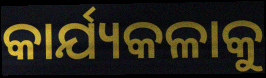
କାର୍ଯ୍ୟକଳାକୁ